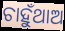
ଚାହୁଁଥାଅ